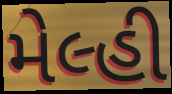
મેલ્હી